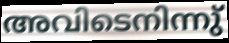
അവിടെനിന്നു്